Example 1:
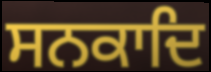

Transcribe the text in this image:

ਸਨਕਾਦਿ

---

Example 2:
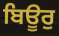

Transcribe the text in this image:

ਬਿਊਰੁ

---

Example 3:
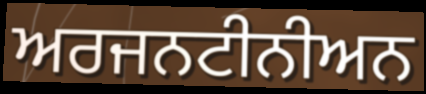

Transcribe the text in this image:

ਅਰਜਨਟੀਨੀਅਨ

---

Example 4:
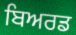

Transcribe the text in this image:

ਬਿਅਰਡ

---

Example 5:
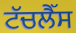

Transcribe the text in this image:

ਟੱਚਲੈੱਸ